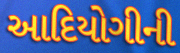
આદિયોગીની